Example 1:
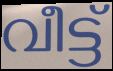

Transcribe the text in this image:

വീട്ട്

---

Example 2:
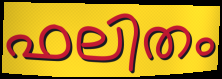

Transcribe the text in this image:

ഫലിതം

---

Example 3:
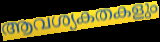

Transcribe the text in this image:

ആവശ്യകതകളും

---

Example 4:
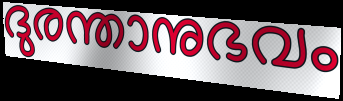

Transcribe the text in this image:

ദുരന്താനുഭവം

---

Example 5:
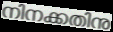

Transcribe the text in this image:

നിനക്കതിനു